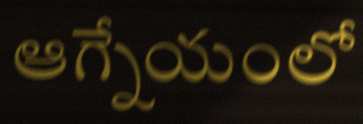
ఆగ్నేయంలో